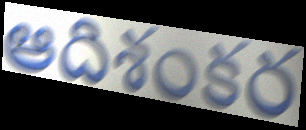
ఆదిశంకర